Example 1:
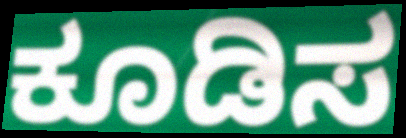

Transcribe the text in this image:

ಕೂಡಿಸ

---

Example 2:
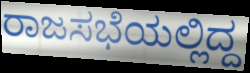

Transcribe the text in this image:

ರಾಜಸಭೆಯಲ್ಲಿದ್ದ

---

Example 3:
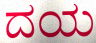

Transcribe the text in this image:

ದಯ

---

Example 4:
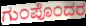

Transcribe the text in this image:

ಗುಂಪೊಂದರ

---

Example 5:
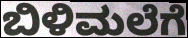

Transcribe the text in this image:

ಬಿಳಿಮಲೆಗೆ